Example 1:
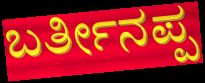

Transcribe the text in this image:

ಬರ್ತೀನಪ್ಪ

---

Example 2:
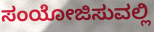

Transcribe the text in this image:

ಸಂಯೋಜಿಸುವಲ್ಲಿ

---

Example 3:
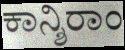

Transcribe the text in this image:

ಕಾನ್ಶಿರಾಂ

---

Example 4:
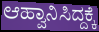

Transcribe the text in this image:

ಆಹ್ವಾನಿಸಿದ್ದಕ್ಕೆ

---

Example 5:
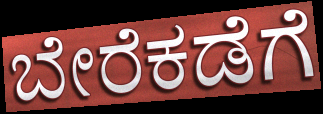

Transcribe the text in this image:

ಬೇರೆಕಡೆಗೆ